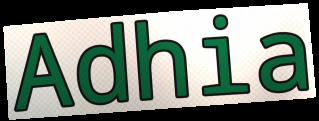
Adhia